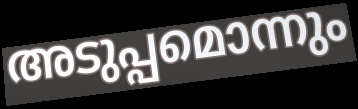
അടുപ്പമൊന്നും